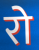
रो